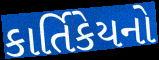
કાર્તિકેયનો